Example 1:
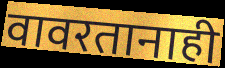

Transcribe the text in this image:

वावरतानाही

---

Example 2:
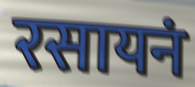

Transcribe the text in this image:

रसायनं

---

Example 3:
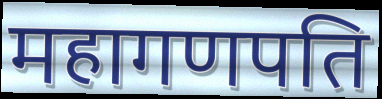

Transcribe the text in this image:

महागणपति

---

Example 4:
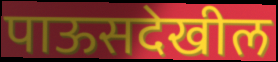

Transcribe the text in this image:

पाऊसदेखील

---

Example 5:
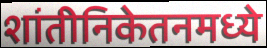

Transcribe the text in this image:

शांतीनिकेतनमध्ये